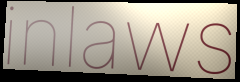
inlaws